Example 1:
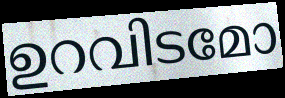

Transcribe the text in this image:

ഉറവിടമോ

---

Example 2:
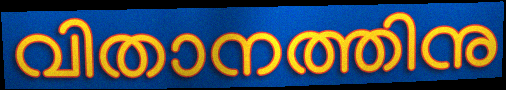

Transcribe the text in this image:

വിതാനത്തിനു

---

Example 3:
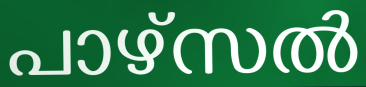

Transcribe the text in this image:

പാഴ്സൽ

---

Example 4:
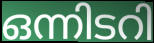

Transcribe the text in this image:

ഒന്നിടറി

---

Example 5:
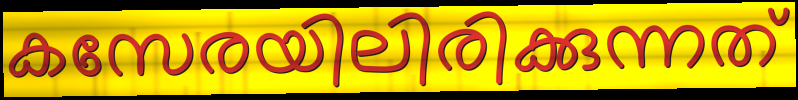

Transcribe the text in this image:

കസേരയിലിരിക്കുന്നത്